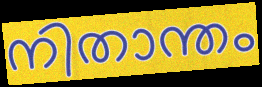
നിതാന്തം